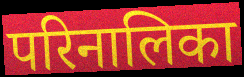
परिनालिका